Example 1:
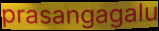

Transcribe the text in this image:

prasangagalu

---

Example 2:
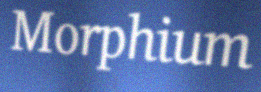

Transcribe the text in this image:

Morphium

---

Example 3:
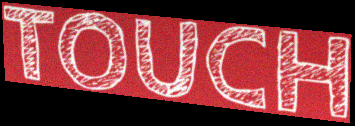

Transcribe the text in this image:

TOUCH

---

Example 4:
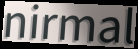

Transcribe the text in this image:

nirmal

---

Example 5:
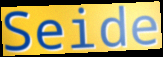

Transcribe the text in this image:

Seide